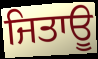
ਜਿਤਾਊ